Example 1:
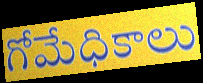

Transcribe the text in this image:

గోమేధికాలు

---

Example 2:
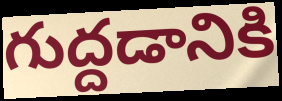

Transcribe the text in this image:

గుద్దడానికి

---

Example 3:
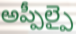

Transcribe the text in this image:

అప్పీల్పై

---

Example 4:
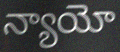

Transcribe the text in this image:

న్యాయో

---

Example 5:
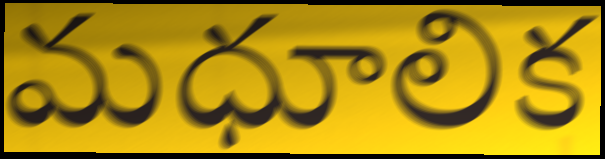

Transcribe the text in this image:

మధూలిక